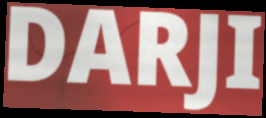
DARJI